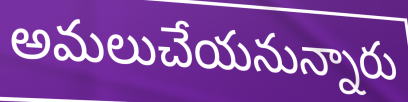
అమలుచేయనున్నారు